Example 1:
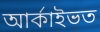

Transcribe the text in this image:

আৰ্কাইভত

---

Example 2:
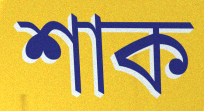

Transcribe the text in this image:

শাক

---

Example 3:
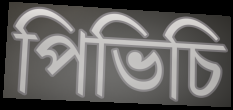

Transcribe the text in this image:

পিভিচি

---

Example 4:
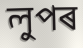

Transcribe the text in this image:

লুপৰ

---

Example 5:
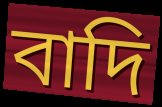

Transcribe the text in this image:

বাদি